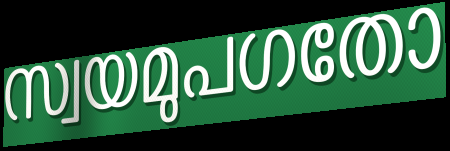
സ്വയമുപഗതോ